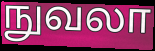
நுவலா